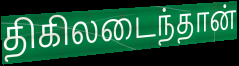
திகிலடைந்தான்